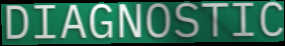
DIAGNOSTIC